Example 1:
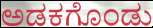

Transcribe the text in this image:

ಅಡಕಗೊಂಡು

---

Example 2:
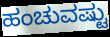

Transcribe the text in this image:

ಹಂಚುವಷ್ಟು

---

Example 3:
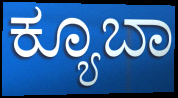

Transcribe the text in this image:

ಕ್ಯೂಬಾ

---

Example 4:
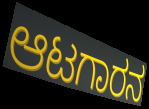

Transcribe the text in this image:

ಆಟಗಾರನ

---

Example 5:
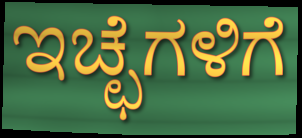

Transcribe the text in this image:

ಇಚ್ಛೆಗಳಿಗೆ